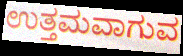
ಉತ್ತಮವಾಗುವ